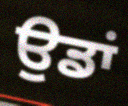
ਉਡਾਂ